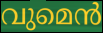
വുമെൻ